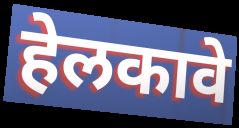
हेलकावे